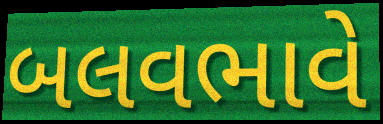
બલવભાવે